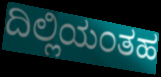
ದಿಲ್ಲಿಯಂತಹ